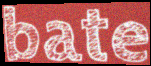
bate